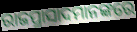
ରାଜପ୍ରାସାଦମାନଙ୍କରେ